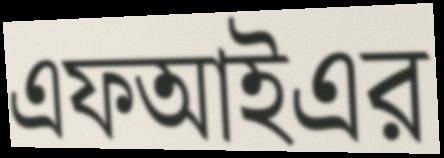
এফআইএর